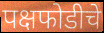
पक्षफोडीचे